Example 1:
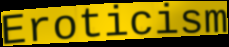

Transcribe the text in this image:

Eroticism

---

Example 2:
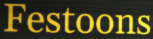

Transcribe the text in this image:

Festoons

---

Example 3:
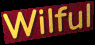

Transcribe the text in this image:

Wilful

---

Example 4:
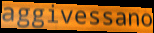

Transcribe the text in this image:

aggivessano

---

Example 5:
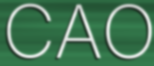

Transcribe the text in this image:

CAO